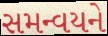
સમન્વયને